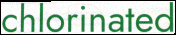
chlorinated